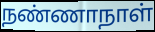
நண்ணாநாள்